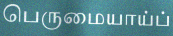
பெருமையாய்ப்